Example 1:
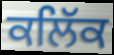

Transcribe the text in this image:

ਕਲਿੱਕ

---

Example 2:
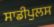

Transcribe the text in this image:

ਸਾਡੀਪੁਲਸ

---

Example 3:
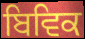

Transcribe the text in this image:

ਬਿਵਿਕ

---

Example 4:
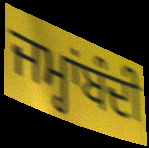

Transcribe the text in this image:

ਜਮ੍ਹਾਂਬੰਦੀ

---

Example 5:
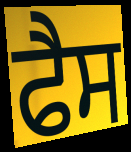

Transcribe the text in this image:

ਫੈਸ